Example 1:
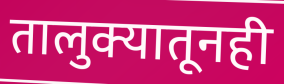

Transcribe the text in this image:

तालुक्यातूनही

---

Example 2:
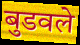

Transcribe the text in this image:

बुडवले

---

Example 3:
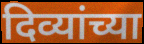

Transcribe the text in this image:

दिव्यांच्या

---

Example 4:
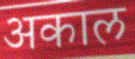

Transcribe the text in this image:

अकाल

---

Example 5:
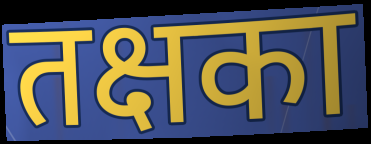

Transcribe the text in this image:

तक्षका